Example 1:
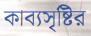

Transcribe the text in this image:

কাব্যসৃষ্টির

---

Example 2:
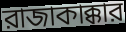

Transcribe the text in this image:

রাজাকাক্কার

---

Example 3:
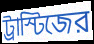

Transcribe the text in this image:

ট্রাস্টিজের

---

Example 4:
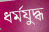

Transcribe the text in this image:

ধর্মযুদ্ধ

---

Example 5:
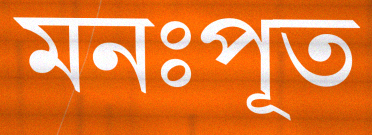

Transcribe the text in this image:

মনঃপূত